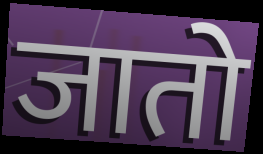
जातो